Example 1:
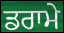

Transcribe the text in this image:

ਡਰਾਮੇ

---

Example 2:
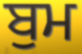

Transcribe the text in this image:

ਬੁਮ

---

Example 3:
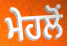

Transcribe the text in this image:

ਮੇਹਲੋਂ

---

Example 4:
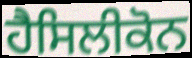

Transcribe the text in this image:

ਹੈਸਿਲੀਕੋਨ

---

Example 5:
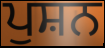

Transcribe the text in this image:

ਪੁਸ਼ਨ